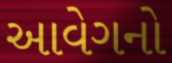
આવેગનો